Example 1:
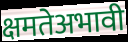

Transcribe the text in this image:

क्षमतेअभावी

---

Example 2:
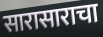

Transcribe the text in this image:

सारासाराचा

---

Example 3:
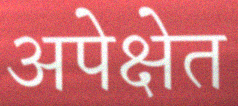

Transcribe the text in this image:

अपेक्षेत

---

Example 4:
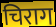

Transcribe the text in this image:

चिराग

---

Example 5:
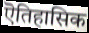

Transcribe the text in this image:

ऎतिहासिक